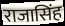
राजासिंह